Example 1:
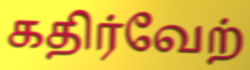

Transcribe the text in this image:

கதிர்வேற்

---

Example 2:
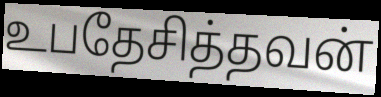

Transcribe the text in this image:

உபதேசித்தவன்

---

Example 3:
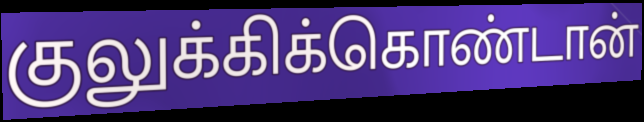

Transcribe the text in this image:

குலுக்கிக்கொண்டான்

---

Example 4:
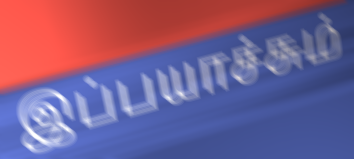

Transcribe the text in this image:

இப்பயாச்சும்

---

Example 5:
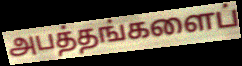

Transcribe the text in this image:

அபத்தங்களைப்